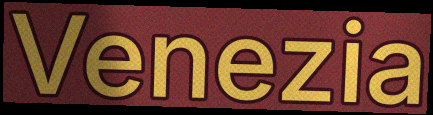
Venezia